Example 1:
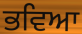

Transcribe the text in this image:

ਭਵਿਆ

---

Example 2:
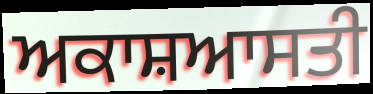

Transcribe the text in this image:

ਅਕਾਸ਼ਆਸਤੀ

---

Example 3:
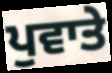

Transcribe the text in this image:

ਪੁਵਾਤੇ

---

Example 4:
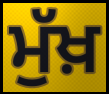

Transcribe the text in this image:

ਮੁੱਖ਼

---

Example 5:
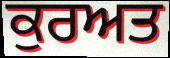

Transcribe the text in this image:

ਕੁਰਅਤ